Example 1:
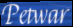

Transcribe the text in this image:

Petwar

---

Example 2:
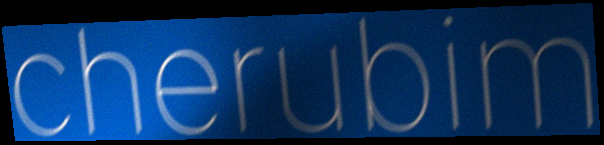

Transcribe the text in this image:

cherubim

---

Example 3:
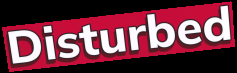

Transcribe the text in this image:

Disturbed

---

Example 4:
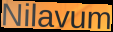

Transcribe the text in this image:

Nilavum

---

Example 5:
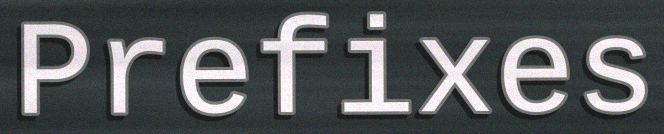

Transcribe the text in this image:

Prefixes